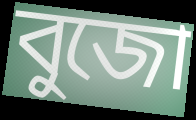
বুজো